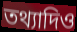
তথ্যাদিও